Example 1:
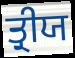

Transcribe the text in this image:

ਤ੍ਰੀਯ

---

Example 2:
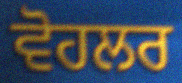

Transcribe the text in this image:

ਵੋਹਲਰ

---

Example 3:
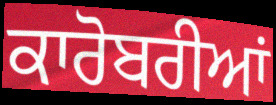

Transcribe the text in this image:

ਕਾਰੋਬਰੀਆਂ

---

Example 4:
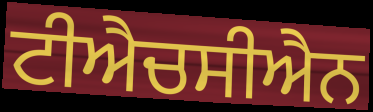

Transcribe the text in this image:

ਟੀਐਚਸੀਐਨ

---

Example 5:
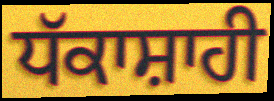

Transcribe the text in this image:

ਧੱਕਾਸ਼ਾਹੀ